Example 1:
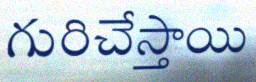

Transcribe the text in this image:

గురిచేస్తాయి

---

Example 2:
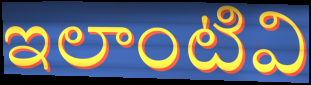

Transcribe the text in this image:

ఇలాంటివి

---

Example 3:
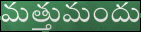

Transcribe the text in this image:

మత్తుమందు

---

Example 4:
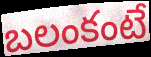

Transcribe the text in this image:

బలంకంటే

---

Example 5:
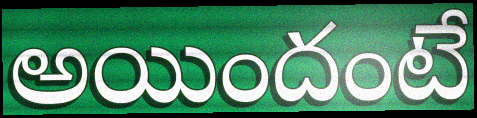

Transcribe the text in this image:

అయిందంటే